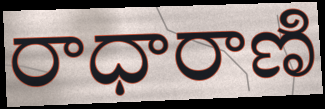
రాధారాణి